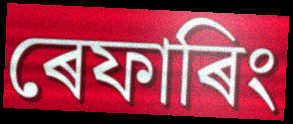
ৰেফাৰিং